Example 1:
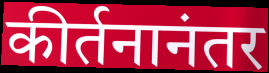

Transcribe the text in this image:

कीर्तनानंतर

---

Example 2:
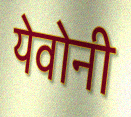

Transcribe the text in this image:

येवोनी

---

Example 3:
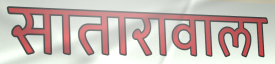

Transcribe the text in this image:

सातारावाला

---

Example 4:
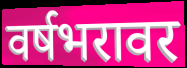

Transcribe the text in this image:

वर्षभरावर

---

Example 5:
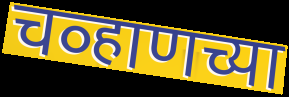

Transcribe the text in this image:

चव्हाणच्या